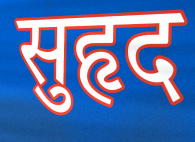
सुहृद